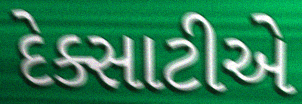
દેક્સાટીએ